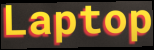
Laptop